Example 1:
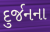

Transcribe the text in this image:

દુર્જનના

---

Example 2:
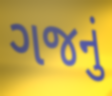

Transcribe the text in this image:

ગજનું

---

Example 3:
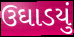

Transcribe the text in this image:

ઉઘાડયું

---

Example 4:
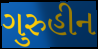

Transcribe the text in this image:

ગુરુહીન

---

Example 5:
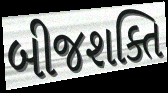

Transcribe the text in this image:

બીજશક્તિ